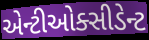
એન્ટીઓક્સીડેન્ટ